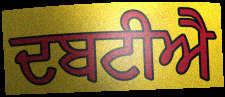
ਦਬਟੀਐ